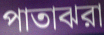
পাতাঝরা